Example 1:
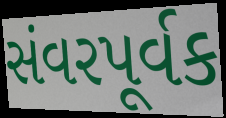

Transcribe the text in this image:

સંવરપૂર્વક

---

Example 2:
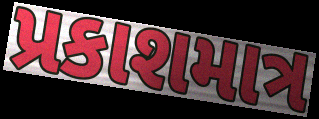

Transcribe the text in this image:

પ્રકાશમાત્ર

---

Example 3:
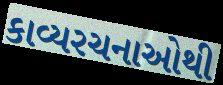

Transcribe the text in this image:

કાવ્યરચનાઓથી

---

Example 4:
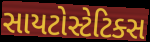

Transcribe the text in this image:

સાયટોસ્ટેટિક્સ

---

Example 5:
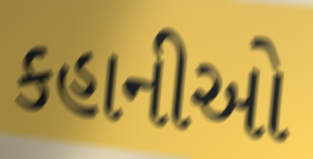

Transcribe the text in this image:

કહાનીઓ